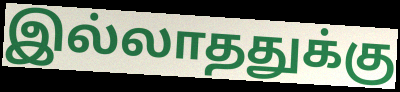
இல்லாததுக்கு